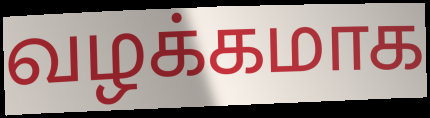
வழக்கமாக